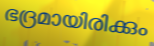
ഭദ്രമായിരിക്കും